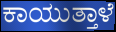
ಕಾಯುತ್ತಾಳೆ